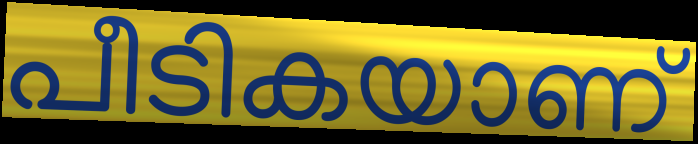
പീടികയാണ്